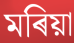
মৰিয়া